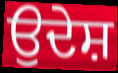
ਉਦੇਸ਼